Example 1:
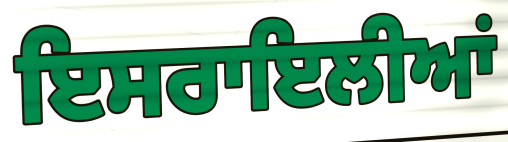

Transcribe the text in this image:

ਇਸਰਾਇਲੀਆਂ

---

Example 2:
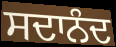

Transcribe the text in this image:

ਸਦਾਨੰਦ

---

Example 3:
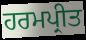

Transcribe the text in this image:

ਹਰਮਪ੍ਰੀਤ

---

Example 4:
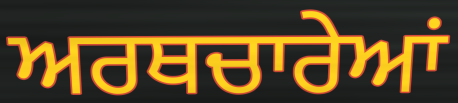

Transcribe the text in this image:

ਅਰਥਚਾਰੇਆਂ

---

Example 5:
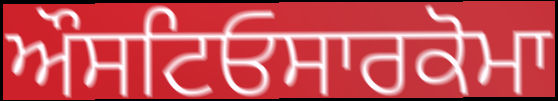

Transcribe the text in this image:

ਔਸਟਿਓਸਾਰਕੋਮਾ